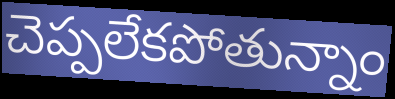
చెప్పలేకపోతున్నాం